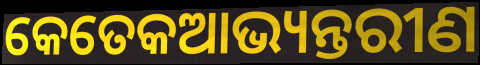
କେତେକଆଭ୍ୟନ୍ତରୀଣ